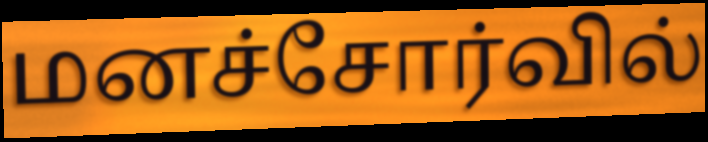
மனச்சோர்வில்